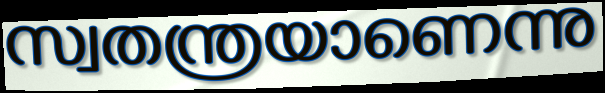
സ്വതന്ത്രയാണെന്നു